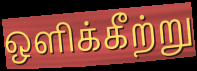
ஒளிக்கீற்று